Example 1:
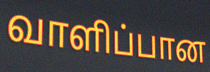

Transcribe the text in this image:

வாளிப்பான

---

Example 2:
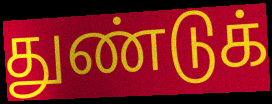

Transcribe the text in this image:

துண்டுக்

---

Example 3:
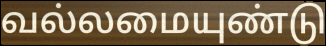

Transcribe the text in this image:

வல்லமையுண்டு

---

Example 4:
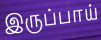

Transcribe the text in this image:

இருப்பாய்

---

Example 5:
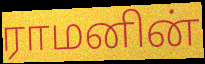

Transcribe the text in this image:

ராமனின்